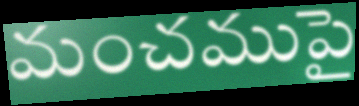
మంచముపై